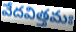
వేదవిత్తమః